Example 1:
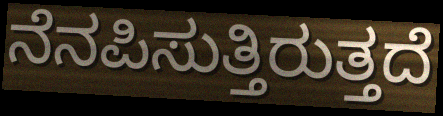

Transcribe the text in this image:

ನೆನಪಿಸುತ್ತಿರುತ್ತದೆ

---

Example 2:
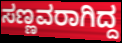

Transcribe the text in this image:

ಸಣ್ಣವರಾಗಿದ್ದ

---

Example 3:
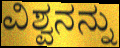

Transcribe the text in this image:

ವಿಶ್ವನನ್ನು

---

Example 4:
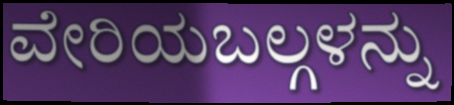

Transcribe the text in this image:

ವೇರಿಯಬಲ್ಗಳನ್ನು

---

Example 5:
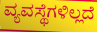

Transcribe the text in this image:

ವ್ಯವಸ್ಥೆಗಳಿಲ್ಲದೆ